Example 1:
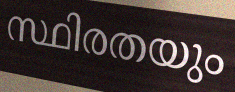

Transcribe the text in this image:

സ്ഥിരതയും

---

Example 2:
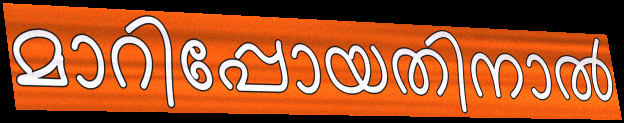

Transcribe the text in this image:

മാറിപ്പോയതിനാൽ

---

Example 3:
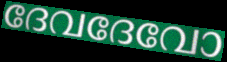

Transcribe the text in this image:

ദേവദേവോ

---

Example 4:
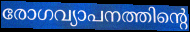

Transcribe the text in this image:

രോഗവ്യാപനത്തിന്റെ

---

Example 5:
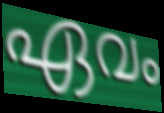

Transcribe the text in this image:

ഏവം